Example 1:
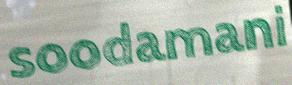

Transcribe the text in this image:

soodamani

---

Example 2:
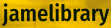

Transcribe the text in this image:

jamelibrary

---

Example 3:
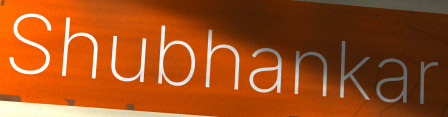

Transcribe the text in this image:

Shubhankar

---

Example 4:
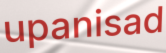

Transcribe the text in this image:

upanisad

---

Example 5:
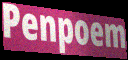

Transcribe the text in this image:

Penpoem